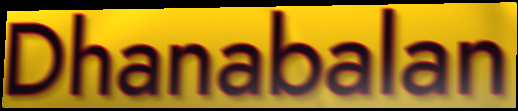
Dhanabalan